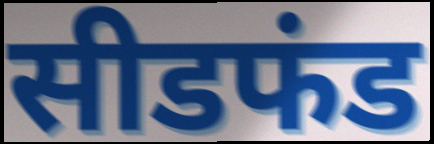
सीडफंड